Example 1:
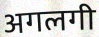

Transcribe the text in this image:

अगलगी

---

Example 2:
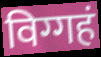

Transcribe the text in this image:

विग्गहं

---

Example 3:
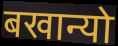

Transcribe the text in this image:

बखान्यो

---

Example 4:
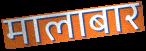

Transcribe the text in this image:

मालाबार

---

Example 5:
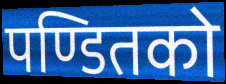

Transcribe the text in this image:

पण्डितको